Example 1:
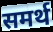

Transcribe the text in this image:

समर्थ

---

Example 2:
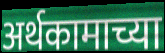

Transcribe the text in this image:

अर्थकामाच्या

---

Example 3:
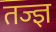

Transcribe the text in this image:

तज्ज्ञ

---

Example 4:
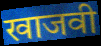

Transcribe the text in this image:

खाजवी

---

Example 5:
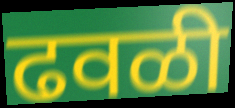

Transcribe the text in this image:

ढवळी